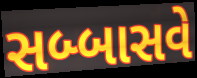
સબ્બાસવે